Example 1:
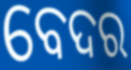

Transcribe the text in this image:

ବେଦର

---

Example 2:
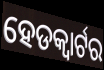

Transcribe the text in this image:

ହେଡକ୍ୱାର୍ଟର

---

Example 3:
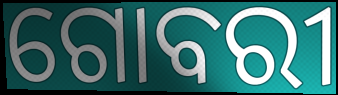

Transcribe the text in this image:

ଗୋବରୀ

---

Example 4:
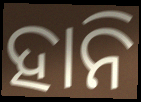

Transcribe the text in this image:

ହାନି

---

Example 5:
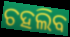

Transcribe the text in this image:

ଚହଲିବ